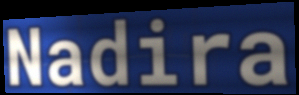
Nadira